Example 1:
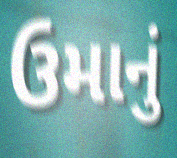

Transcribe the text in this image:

ઉમાનું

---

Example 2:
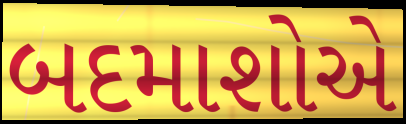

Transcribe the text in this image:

બદમાશોએ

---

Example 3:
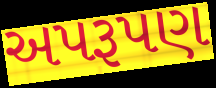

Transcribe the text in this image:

અપરૂપણ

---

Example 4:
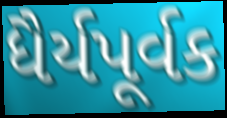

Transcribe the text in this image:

ધૈર્યપૂર્વક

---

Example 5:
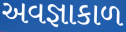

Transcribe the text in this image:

અવજ્ઞાકાળ